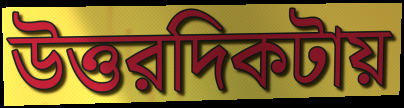
উত্তরদিকটায়